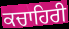
ਕਚਾਹਿਰੀ